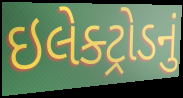
ઇલેક્ટ્રોડનું